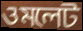
ওমলেট